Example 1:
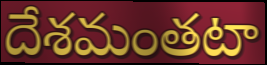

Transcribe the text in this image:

దేశమంతటా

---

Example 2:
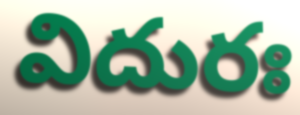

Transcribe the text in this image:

విదురః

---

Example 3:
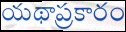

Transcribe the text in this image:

యథాప్రకారం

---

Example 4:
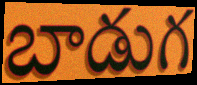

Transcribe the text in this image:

బాడుగ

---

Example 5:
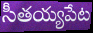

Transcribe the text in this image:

సీతయ్యపేట